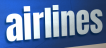
airlines